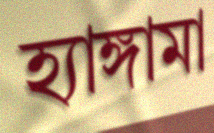
হ্যাঙ্গামা